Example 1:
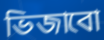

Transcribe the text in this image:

ভিজাবো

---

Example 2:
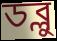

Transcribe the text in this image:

ডব্লু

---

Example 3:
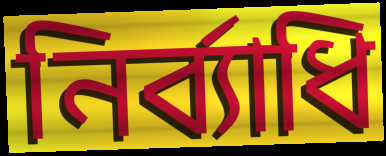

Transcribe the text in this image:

নির্ব্যাধি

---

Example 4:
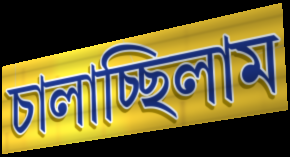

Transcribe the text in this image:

চালাচ্ছিলাম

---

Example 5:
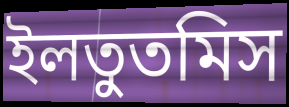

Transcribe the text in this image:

ইলতুতমিস